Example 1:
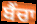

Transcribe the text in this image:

ਬੈਂਚਾ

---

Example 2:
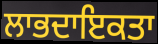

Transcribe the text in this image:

ਲਾਭਦਾਇਕਤਾ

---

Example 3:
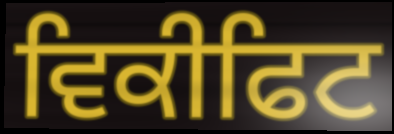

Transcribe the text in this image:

ਵਿਕੀਫਿਟ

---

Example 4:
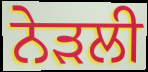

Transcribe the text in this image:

ਨੇੜਲੀ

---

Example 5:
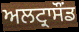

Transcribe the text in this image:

ਅਲਟ੍ਰਾਸੌਂਡ